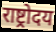
राष्ट्रोदय